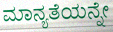
ಮಾನ್ಯತೆಯನ್ನೇ